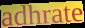
adhrate